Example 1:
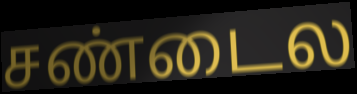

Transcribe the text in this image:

சண்டைல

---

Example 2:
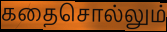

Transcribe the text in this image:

கதைசொல்லும்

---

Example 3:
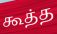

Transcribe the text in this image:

கூத்த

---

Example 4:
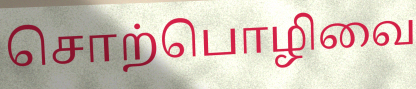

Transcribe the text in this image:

சொற்பொழிவை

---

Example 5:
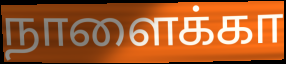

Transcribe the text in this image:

நாளைக்கா